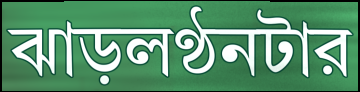
ঝাড়লণ্ঠনটার